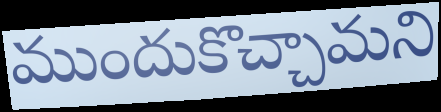
ముందుకొచ్చామని